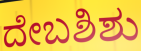
ದೇಬಶಿಶು